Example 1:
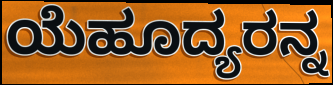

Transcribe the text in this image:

ಯೆಹೂದ್ಯರನ್ನ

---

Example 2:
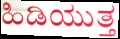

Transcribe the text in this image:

ಹಿಡಿಯುತ್ತ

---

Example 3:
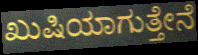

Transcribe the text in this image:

ಖುಷಿಯಾಗುತ್ತೇನೆ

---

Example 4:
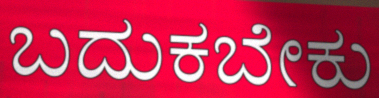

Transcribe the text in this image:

ಬದುಕಬೇಕು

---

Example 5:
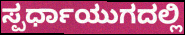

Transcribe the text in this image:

ಸ್ಪರ್ಧಾಯುಗದಲ್ಲಿ